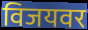
विजयवर